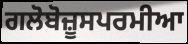
ਗਲੋਬੋਜ਼ੂਸਪਰਮੀਆ